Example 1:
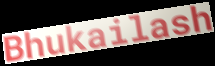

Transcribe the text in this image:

Bhukailash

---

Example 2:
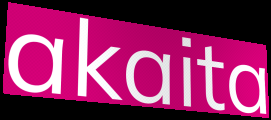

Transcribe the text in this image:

akaita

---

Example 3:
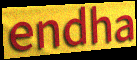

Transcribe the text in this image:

endha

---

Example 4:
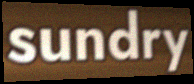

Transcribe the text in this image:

sundry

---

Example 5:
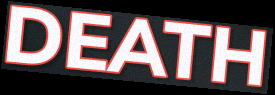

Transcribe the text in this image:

DEATH